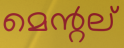
മെന്റല്